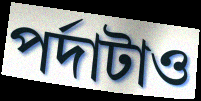
পর্দাটাও